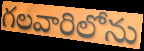
గలవారిలోను